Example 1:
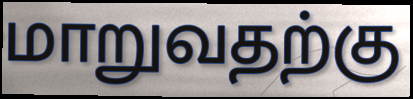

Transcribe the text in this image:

மாறுவதற்கு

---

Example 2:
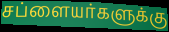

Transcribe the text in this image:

சப்ளையர்களுக்கு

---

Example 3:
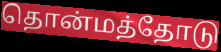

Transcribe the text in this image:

தொன்மத்தோடு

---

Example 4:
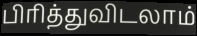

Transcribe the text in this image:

பிரித்துவிடலாம்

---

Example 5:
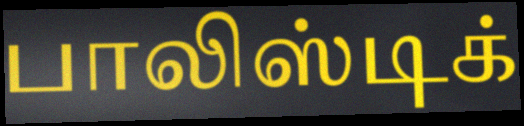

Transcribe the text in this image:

பாலிஸ்டிக்